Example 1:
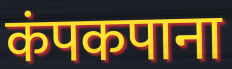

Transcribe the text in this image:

कंपकपाना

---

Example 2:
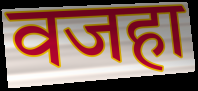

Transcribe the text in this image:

वजहा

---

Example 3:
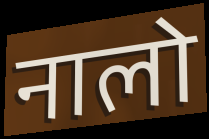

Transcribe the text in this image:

नालो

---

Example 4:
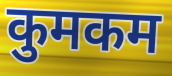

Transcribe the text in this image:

कुमकम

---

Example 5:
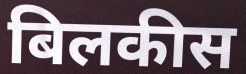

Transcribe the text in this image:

बिलकीस